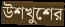
উশখুশের